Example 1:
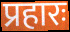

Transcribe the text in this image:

प्रहारः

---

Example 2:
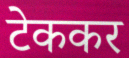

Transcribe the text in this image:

टेककर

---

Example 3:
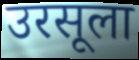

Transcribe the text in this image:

उरसूला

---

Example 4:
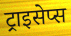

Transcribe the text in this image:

ट्राइसेप्स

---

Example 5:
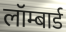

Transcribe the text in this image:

लॉम्बार्ड